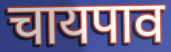
चायपाव